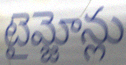
టైమ్జోన్లు